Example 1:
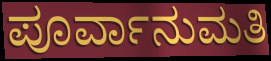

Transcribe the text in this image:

ಪೂರ್ವಾನುಮತಿ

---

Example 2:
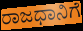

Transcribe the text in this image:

ರಾಜಧಾನಿಗೆ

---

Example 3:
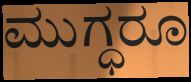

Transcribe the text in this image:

ಮುಗ್ಧರೂ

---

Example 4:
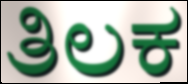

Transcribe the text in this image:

ತಿಲಕ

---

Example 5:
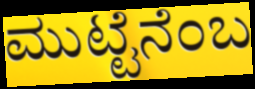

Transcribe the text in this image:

ಮುಟ್ಟೆನೆಂಬ